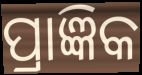
ପ୍ରାଜ୍ଞିକ